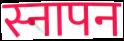
स्नापन